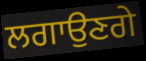
ਲਗਾਉਣਗੇ